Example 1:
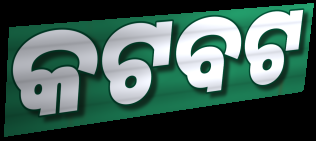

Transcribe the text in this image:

କଟବଟ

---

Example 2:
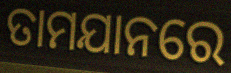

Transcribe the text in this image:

ତାମଯାନରେ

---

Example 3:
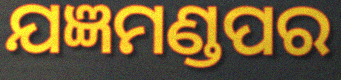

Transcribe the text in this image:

ଯଜ୍ଞମଣ୍ଡପର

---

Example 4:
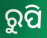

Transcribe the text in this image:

ରୁପି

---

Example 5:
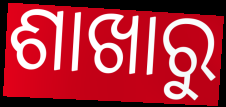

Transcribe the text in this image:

ଶାଖାରୁ